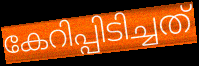
കേറിപ്പിടിച്ചത്